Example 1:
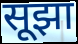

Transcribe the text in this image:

सूझा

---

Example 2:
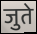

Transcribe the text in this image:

जुते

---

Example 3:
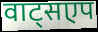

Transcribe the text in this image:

वाट्सएप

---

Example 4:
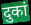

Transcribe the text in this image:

दुकां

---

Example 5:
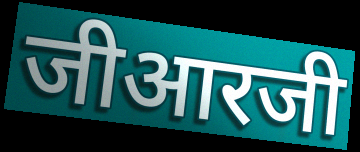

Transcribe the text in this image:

जीआरजी